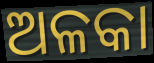
ଅଳକା